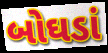
બોઘડાં